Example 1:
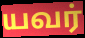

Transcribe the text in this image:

யவர்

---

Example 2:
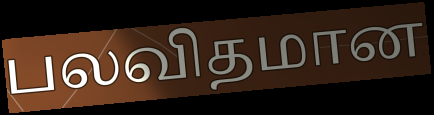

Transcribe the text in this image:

பலவிதமான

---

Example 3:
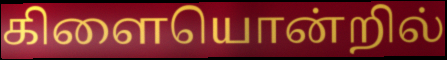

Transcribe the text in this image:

கிளையொன்றில்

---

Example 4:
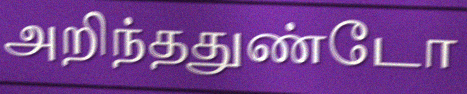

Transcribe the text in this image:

அறிந்ததுண்டோ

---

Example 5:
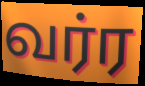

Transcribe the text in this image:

வர்ர